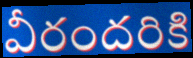
వీరందరికి